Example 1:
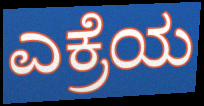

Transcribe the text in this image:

ಎಕ್ರೆಯ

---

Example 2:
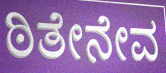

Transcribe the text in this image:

ಠಿತೇನೇವ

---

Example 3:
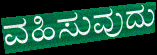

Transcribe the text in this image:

ವಹಿಸುವುದು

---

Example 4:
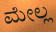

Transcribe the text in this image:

ಮೇಲ್ಲ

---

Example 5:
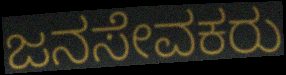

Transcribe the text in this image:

ಜನಸೇವಕರು